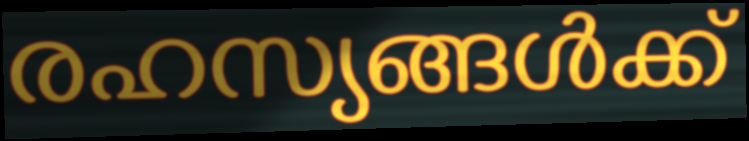
രഹസ്യങ്ങൾക്ക്